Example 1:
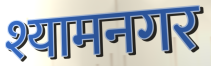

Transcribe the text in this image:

श्यामनगर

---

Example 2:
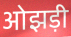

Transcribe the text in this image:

ओझड़ी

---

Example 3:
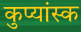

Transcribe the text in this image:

कुप्यांस्क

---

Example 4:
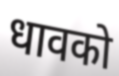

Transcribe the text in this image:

धावको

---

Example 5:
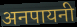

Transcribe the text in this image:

अनपायनी